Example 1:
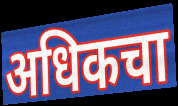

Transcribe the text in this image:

अधिकचा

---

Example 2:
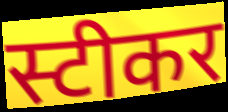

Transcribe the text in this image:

स्टीकर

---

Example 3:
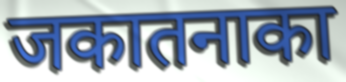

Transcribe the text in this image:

जकातनाका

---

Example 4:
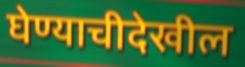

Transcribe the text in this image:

घेण्याचीदेखील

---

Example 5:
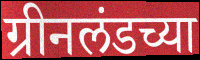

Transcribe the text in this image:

ग्रीनलंडच्या